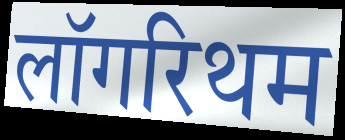
लॉगरिथम